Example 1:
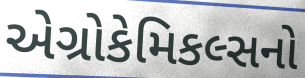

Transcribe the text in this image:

એગ્રોકેમિકલ્સનો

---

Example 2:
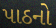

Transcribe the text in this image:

પાઠનો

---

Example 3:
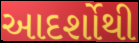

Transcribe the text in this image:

આદર્શોથી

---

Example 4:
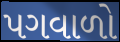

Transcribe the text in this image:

પગવાળો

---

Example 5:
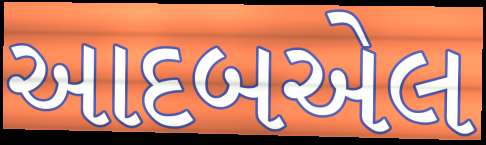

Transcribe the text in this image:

આદબએલ